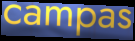
campas